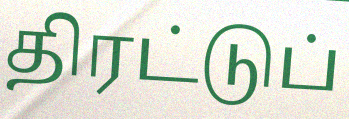
திரட்டுப்